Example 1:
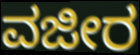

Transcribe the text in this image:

ವಜೀರ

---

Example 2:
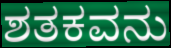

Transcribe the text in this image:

ಶತಕವನು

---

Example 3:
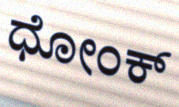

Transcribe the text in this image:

ಧೋಂಕ್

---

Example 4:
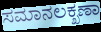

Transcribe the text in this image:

ಸಮಾನಲಕ್ಖಣಾ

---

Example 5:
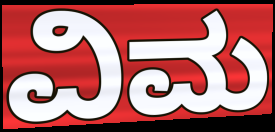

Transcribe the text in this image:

ವಿಮ